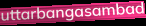
uttarbangasambad